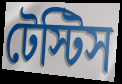
টেস্টিস